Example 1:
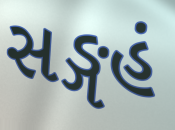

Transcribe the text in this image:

સઙ્ગહં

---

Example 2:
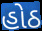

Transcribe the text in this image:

હોઠ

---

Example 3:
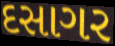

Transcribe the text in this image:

દસાગર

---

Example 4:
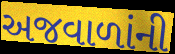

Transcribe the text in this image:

અજવાળાંની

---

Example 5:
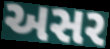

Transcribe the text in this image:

અસર